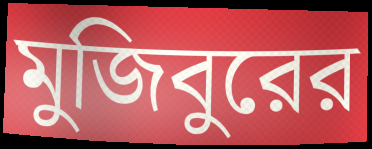
মুজিবুরের